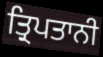
ਤ੍ਰਿਪਤਾਨੀ